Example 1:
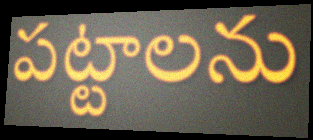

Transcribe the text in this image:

పట్టాలను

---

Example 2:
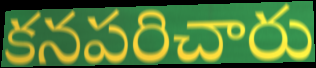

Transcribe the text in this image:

కనపరిచారు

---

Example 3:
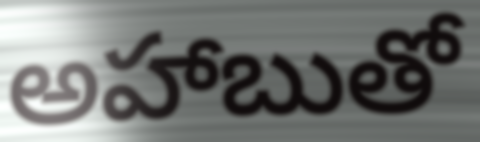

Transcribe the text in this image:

అహాబుతో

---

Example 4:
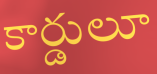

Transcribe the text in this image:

కార్డులూ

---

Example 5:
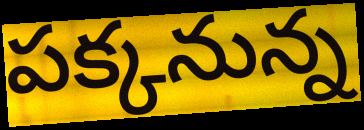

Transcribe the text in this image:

పక్కనున్న